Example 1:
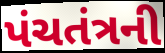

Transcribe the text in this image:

પંચતંત્રની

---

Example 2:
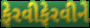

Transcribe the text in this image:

ફેરવીફેરવીને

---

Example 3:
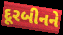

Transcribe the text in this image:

દૂરબીનને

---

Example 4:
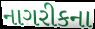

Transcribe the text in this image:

નાગરીકના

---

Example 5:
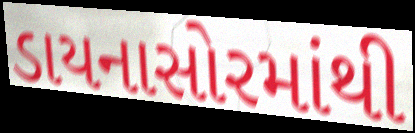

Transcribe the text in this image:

ડાયનાસોરમાંથી